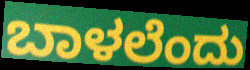
ಬಾಳಲೆಂದು